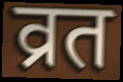
व्रत